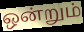
ஒன்றும்